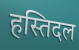
हस्तिदल